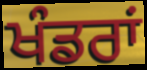
ਖੰਡਰਾਂ